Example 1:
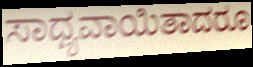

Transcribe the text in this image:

ಸಾಧ್ಯವಾಯಿತಾದರೂ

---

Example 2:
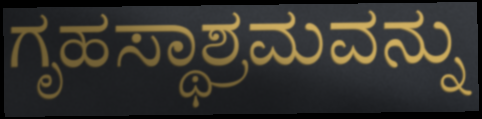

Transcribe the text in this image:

ಗೃಹಸ್ಥಾಶ್ರಮವನ್ನು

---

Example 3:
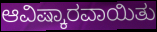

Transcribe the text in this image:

ಆವಿಷ್ಕಾರವಾಯಿತು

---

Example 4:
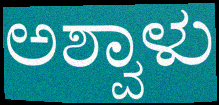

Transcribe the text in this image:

ಅಶ್ವಾಳು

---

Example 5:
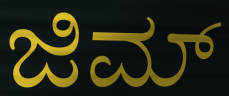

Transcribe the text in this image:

ಜಿಮ್